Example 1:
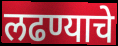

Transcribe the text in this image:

लढण्याचे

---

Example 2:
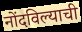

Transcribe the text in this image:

नोंदविल्याची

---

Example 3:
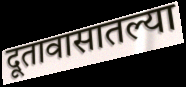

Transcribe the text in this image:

दूतावासातल्या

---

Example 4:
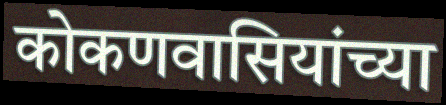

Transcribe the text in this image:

कोकणवासियांच्या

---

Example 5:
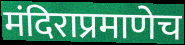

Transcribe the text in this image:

मंदिराप्रमाणेच